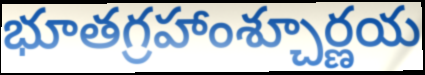
భూతగ్రహాంశ్చూర్ణయ